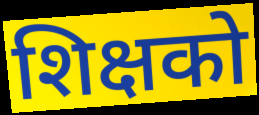
शिक्षको